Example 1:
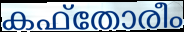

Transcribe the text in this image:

കഫ്തോരീം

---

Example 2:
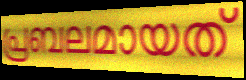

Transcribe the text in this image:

പ്രബലമായത്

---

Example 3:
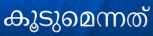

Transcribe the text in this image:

കൂടുമെന്നത്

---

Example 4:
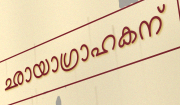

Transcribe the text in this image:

ഛായാഗ്രാഹകന്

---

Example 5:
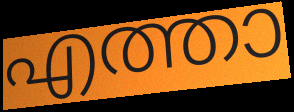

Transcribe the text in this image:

എത്താ